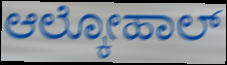
ಆಲ್ಕೋಹಾಲ್